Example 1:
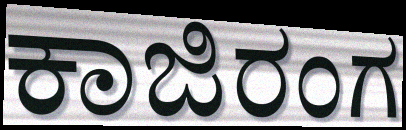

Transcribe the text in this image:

ಕಾಜಿರಂಗ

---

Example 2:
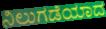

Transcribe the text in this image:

ನಿಲುಗಡೆಯಾದ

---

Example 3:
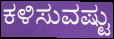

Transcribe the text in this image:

ಕಳಿಸುವಷ್ಟು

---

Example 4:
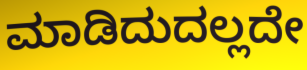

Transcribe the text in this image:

ಮಾಡಿದುದಲ್ಲದೇ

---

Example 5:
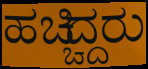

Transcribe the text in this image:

ಹಚ್ಚಿದ್ದರು